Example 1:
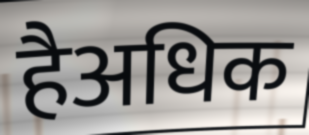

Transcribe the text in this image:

हैअधिक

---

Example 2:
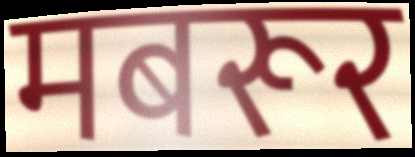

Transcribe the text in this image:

मबरूर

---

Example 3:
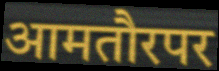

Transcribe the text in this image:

आमतौरपर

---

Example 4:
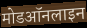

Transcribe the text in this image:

मोडऑनलाइन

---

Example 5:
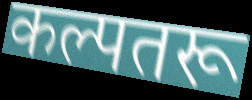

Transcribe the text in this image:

कल्पतरू